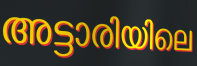
അട്ടാരിയിലെ